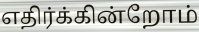
எதிர்க்கின்றோம்